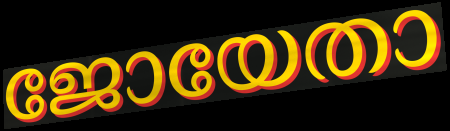
ജോയേതാ